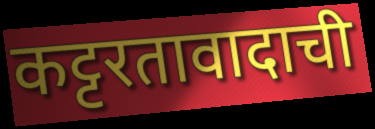
कट्टरतावादाची